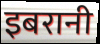
इबरानी